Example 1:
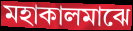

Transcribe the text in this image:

মহাকালমাঝে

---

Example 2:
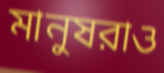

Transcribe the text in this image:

মানুষরাও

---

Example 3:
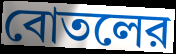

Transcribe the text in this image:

বোতলের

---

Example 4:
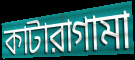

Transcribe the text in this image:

কাটারাগামা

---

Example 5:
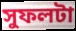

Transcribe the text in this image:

সুফলটা